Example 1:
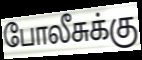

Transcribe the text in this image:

போலீசுக்கு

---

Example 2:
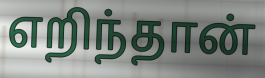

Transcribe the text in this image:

எறிந்தான்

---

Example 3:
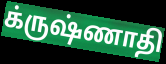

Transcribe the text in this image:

க்ருஷ்ணாதி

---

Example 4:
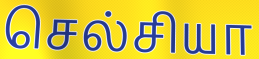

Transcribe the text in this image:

செல்சியா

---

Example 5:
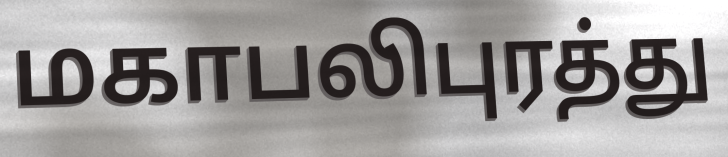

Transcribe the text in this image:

மகாபலிபுரத்து